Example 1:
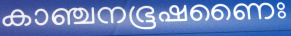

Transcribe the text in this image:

കാഞ്ചനഭൂഷണൈഃ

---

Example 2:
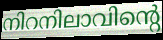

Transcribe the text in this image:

നിറനിലാവിന്റെ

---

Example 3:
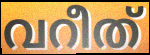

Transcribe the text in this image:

വറീത്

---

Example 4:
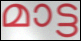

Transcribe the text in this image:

മാട്ട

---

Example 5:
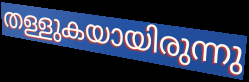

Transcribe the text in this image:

തള്ളുകയായിരുന്നു